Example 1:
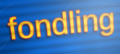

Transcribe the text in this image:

fondling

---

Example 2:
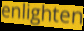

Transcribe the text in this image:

enlighten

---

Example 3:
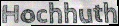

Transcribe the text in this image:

Hochhuth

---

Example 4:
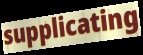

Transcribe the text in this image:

supplicating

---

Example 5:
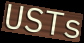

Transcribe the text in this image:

USTs